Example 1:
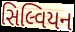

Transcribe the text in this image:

સિલ્વિયન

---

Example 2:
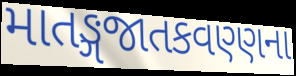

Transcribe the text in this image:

માતઙ્ગજાતકવણ્ણના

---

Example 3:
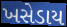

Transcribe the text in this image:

ખસેડાય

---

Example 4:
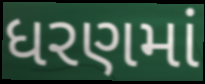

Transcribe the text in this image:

ધરણમાં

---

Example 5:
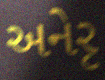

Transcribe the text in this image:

અનેરૃ